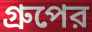
গ্রুপের